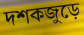
দশকজুড়ে